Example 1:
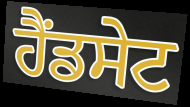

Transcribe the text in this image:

ਹੈਂਡਸੇਟ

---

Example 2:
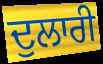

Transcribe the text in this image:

ਦੁਲਾਰੀ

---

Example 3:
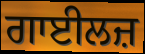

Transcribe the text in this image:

ਗਾਈਲਜ਼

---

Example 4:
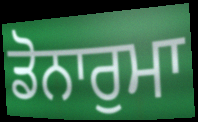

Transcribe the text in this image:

ਡੋਨਾਰੁਮਾ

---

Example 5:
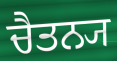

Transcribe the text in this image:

ਚੈਤਨ੍ਯ